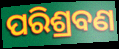
ପରିଶ୍ରବଣ